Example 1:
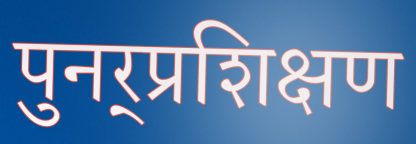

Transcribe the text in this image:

पुनर्प्रशिक्षण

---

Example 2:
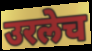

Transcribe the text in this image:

उरलेच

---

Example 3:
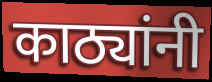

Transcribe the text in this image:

काठ्यांनी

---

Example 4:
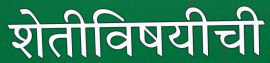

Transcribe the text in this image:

शेतीविषयीची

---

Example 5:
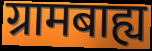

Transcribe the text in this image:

ग्रामबाह्य